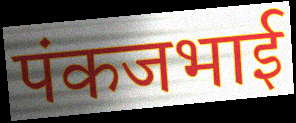
पंकजभाई